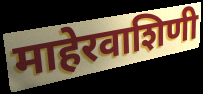
माहेरवाशिणी